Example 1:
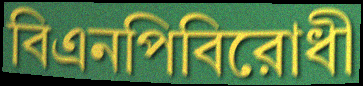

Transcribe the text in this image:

বিএনপিবিরোধী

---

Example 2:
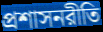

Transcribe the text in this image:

প্রশাসনরীতি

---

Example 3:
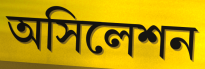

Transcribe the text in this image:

অসিলেশন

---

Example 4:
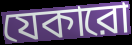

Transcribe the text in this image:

যেকারো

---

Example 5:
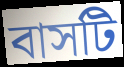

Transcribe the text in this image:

বাসটি